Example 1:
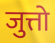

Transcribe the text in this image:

जुत्तो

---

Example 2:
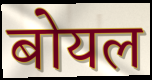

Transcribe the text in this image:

बोयल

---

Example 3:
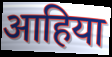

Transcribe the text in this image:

आहिया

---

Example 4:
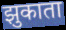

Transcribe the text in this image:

झुकाता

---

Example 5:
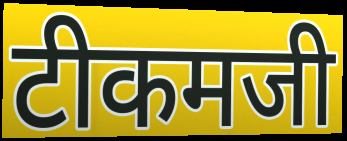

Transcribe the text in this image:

टीकमजी